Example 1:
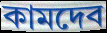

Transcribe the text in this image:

কামদেব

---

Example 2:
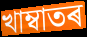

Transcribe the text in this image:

খাম্বাতৰ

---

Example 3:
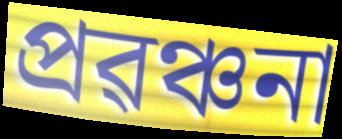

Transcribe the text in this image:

প্ৰৱঞ্চনা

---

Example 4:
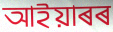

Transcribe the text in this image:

আইয়াৰৰ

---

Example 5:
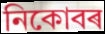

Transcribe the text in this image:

নিকোবৰ